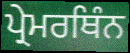
ਪ੍ਰੇਮਰਥਿੰਨ